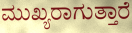
ಮುಖ್ಯರಾಗುತ್ತಾರೆ